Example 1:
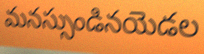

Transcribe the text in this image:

మనస్సుండినయెడల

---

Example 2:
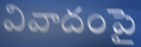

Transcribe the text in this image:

వివాదంపై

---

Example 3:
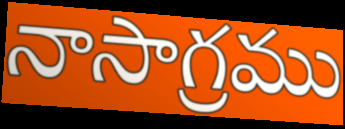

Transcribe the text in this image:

నాసాగ్రము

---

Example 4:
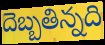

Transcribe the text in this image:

దెబ్బతిన్నది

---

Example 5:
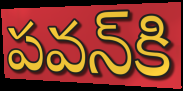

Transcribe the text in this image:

పవన్‌కి